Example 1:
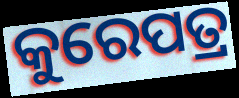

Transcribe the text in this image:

କୁରେପତ୍ର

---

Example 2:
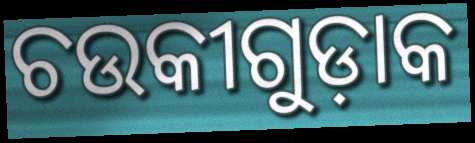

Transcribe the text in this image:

ଚଉକୀଗୁଡ଼ାକ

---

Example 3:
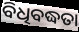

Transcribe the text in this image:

ବିଧିବଦ୍ଧତା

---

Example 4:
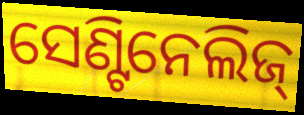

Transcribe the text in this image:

ସେଣ୍ଟିନେଲିଜ୍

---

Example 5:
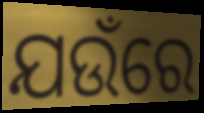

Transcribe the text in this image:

ଯଉଁରେ